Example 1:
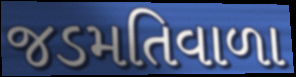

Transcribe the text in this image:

જડમતિવાળા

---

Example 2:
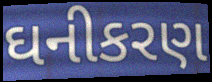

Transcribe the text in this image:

ઘનીકરણ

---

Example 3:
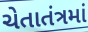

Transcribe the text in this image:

ચેતાતંત્રમાં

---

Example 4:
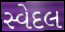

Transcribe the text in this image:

સ્વેદલ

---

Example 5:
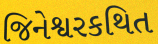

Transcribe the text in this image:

જિનેશ્વરકથિત